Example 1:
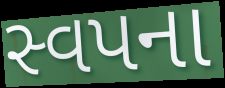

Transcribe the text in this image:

સ્વપના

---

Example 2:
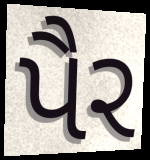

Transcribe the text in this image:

પૈર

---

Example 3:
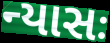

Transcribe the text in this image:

ન્યાસઃ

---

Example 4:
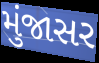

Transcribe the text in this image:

મુંજાસર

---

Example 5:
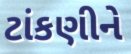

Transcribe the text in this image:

ટાંકણીને